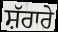
ਸ਼ੱਰਾਰੇ